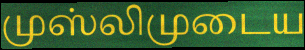
முஸ்லிமுடைய